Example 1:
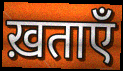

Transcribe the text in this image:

ख़ताएँ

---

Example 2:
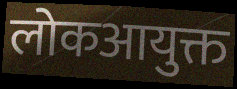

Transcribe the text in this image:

लोकआयुक्त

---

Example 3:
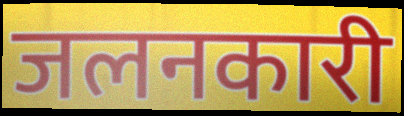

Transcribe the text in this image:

जलनकारी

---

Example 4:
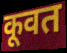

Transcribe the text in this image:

कूवत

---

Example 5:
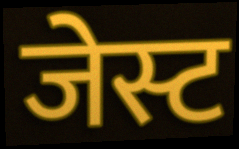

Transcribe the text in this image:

जेस्‍ट